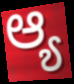
ಆ್ಯ